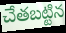
చేతబట్టిన